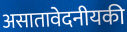
असातावेदनीयकी